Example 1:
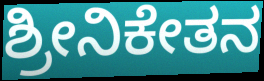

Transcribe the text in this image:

ಶ್ರೀನಿಕೇತನ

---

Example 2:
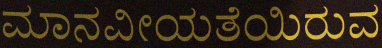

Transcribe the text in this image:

ಮಾನವೀಯತೆಯಿರುವ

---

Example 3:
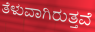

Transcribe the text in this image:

ತೆಳುವಾಗಿರುತ್ತವೆ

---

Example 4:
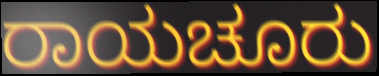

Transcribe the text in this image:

ರಾಯಚೂರು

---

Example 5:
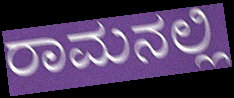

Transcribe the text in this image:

ರಾಮನಲ್ಲಿ